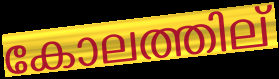
കോലത്തില്